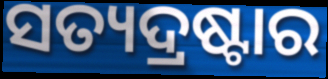
ସତ୍ୟଦ୍ରଷ୍ଟାର